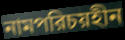
নামপরিচয়হীন